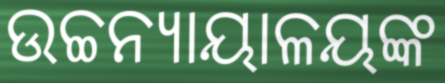
ଉଚ୍ଚନ୍ୟାୟାଳୟଙ୍କ